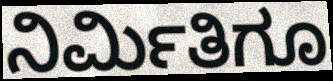
ನಿರ್ಮಿತಿಗೂ